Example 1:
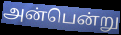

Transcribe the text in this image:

அன்பென்று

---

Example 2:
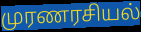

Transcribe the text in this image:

முரணரசியல்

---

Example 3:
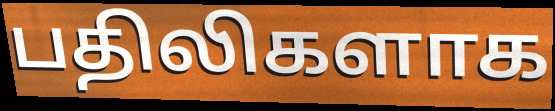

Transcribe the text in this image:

பதிலிகளாக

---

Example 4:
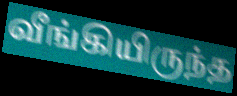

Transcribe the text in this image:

வீங்கியிருந்த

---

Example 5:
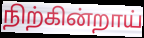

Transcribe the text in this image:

நிற்கின்றாய்